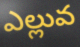
ఎల్లువ